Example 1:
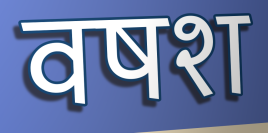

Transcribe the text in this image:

वषश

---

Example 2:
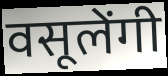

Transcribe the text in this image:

वसूलेंगी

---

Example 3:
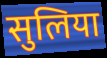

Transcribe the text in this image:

सुलिया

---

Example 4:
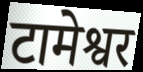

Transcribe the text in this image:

टामेश्वर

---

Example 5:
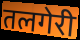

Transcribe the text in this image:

तलगेरी